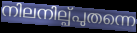
നിലനില്പ്പുതന്നെ